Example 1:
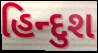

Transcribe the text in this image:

હિન્દુશ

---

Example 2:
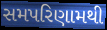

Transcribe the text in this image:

સમપરિણામથી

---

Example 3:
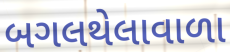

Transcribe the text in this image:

બગલથેલાવાળા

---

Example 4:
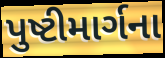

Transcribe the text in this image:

પુષ્ટીમાર્ગના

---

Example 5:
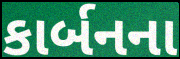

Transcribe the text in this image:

કાર્બનના